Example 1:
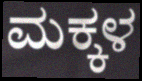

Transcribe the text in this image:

ಮಕ್ಕಳ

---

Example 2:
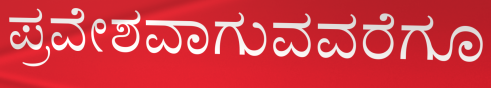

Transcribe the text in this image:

ಪ್ರವೇಶವಾಗುವವರೆಗೂ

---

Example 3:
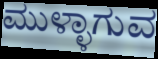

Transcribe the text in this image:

ಮುಳ್ಳಾಗುವ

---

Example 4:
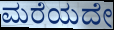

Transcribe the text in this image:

ಮರೆಯದೇ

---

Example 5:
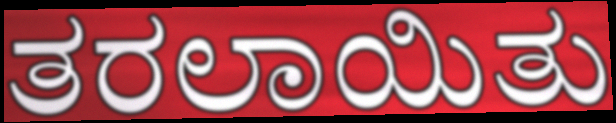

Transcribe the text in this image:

ತರಲಾಯಿತು